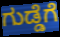
ಗುಡ್ಡೆಗೆ